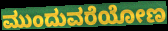
ಮುಂದುವರೆಯೋಣ